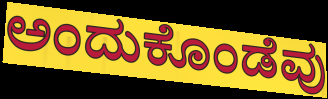
ಅಂದುಕೊಂಡೆವು